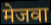
मेजवा